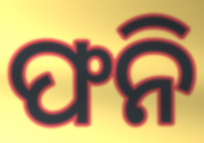
ଫନି